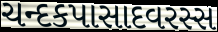
ચન્દકપાસાદવરસ્સ